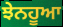
ਝੇਨਹੂਆ